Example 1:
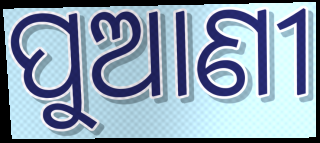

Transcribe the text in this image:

ପୁଆଣୀ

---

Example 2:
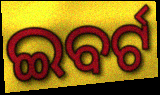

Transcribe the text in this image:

ଇବର୍ଟ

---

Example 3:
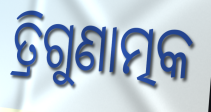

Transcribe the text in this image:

ତ୍ରିଗୁଣାତ୍ମକ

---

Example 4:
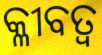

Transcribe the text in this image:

କ୍ଳୀବତ୍ବ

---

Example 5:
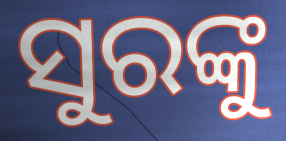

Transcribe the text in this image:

ସୁରଙ୍କୁ